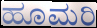
ಹೂಮರಿ